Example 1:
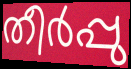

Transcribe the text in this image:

തീർപ്പു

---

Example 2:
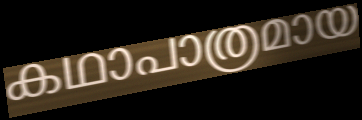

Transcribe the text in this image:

കഥാപാത്രമായ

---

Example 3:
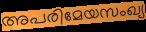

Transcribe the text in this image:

അപരിമേയസംഖ്യ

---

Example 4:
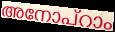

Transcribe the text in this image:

അനോപ്റാം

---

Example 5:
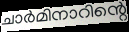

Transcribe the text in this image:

ചാർമിനാറിന്റെ